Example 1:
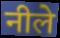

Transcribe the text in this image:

नीले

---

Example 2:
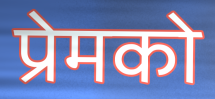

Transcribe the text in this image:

प्रेमको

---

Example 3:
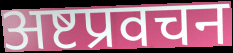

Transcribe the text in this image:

अष्टप्रवचन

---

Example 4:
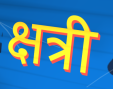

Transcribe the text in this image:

क्षत्री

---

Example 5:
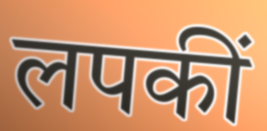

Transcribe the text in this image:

लपकीं